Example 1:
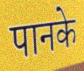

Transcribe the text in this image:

पानके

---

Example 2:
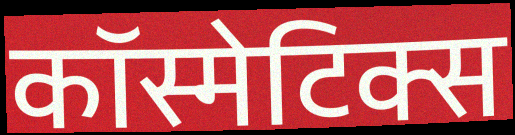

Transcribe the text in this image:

कॉस्मेटिक्स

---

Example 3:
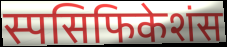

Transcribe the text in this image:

स्पसिफिकेशंस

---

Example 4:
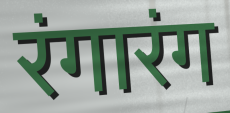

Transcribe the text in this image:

रंगारंग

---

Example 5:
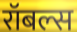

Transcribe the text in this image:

रॉबल्स